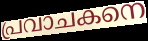
പ്രവാചകനെ